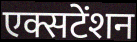
एक्सटेंशन